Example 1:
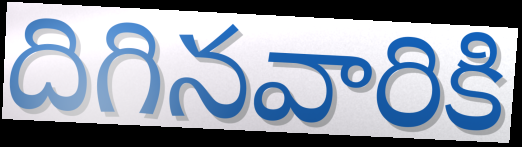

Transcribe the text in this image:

దిగినవారికి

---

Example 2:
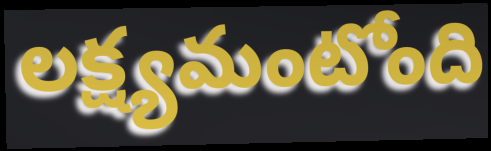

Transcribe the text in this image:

లక్ష్యమంటోంది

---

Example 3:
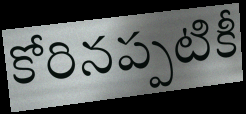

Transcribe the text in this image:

కోరినప్పటికీ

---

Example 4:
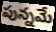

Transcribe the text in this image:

పున్నమే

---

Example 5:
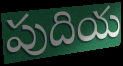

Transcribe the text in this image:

పుదియ